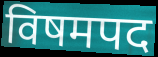
विषमपद